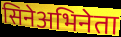
सिनेअभिनेता